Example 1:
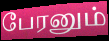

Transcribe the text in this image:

பேரனும்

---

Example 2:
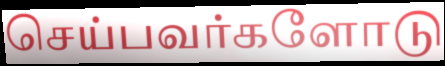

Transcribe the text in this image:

செய்பவர்களோடு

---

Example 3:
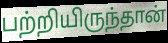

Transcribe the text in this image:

பற்றியிருந்தான்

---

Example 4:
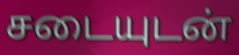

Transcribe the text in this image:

சடையுடன்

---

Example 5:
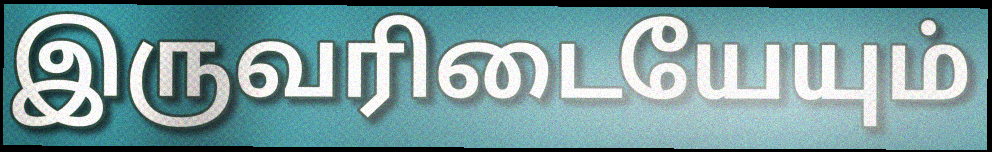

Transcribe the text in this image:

இருவரிடையேயும்